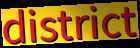
district